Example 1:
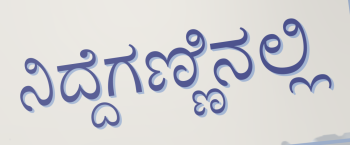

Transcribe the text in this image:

ನಿದ್ದೆಗಣ್ಣಿನಲ್ಲಿ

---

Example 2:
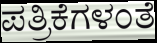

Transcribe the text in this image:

ಪತ್ರಿಕೆಗಳಂತೆ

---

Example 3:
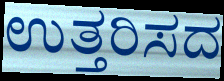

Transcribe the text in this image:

ಉತ್ತರಿಸದ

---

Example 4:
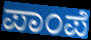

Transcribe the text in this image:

ಪಾಂಪೆ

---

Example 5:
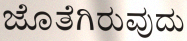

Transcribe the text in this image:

ಜೊತೆಗಿರುವುದು